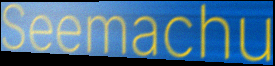
Seemachu